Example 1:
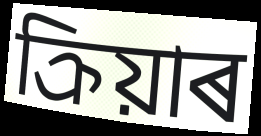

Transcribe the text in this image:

ক্ৰিয়াৰ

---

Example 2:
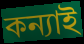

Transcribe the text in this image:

কন্যাই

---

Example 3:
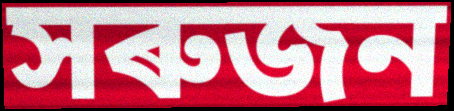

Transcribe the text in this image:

সৰুজন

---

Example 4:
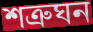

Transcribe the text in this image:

শত্ৰুঘন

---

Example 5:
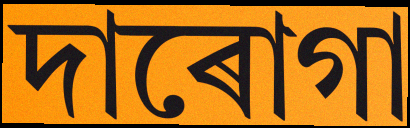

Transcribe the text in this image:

দাৰোগা